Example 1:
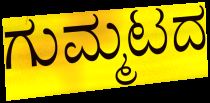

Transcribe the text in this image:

ಗುಮ್ಮಟದ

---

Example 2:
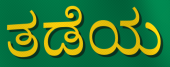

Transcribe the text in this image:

ತಡೆಯ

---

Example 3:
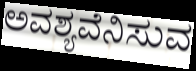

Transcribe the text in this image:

ಅವಶ್ಯವೆನಿಸುವ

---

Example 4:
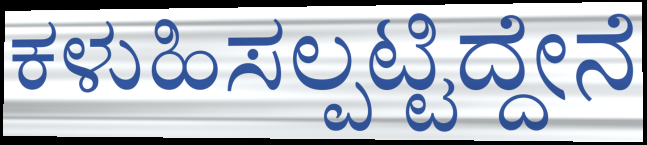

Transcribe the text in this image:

ಕಳುಹಿಸಲ್ಪಟ್ಟಿದ್ದೇನೆ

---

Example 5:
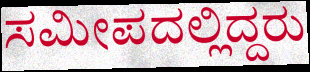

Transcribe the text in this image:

ಸಮೀಪದಲ್ಲಿದ್ದರು